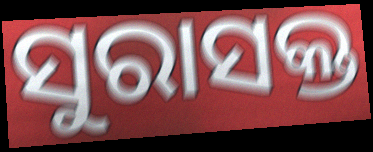
ସୁରାସକ୍ତ